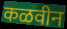
कळवीन